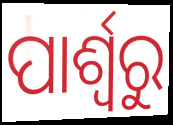
ପାର୍ଶ୍ଵରୁ